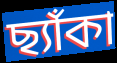
ছ্যাঁকা